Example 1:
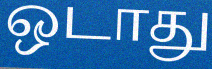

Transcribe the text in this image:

ஒடாது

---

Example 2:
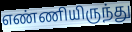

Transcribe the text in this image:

எண்ணியிருந்து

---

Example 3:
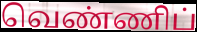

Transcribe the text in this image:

வெண்ணிப்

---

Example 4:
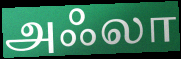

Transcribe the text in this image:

அஃலா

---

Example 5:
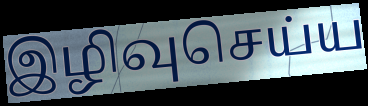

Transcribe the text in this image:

இழிவுசெய்ய